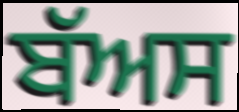
ਬੱਅਸ